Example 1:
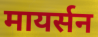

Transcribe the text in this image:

मायर्सन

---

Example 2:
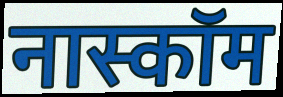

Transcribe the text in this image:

नास्कॉम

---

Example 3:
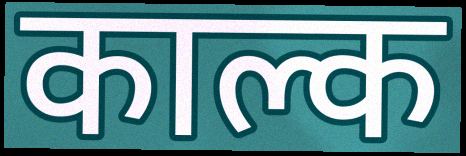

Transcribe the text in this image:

काल्क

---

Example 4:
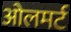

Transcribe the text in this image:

ओलमर्ट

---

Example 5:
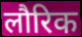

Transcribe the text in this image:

लौरिक